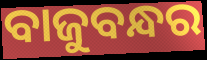
ବାଜୁବନ୍ଧର